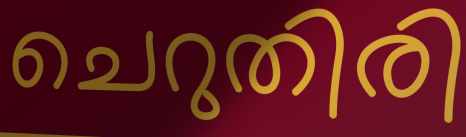
ചെറുതിരി